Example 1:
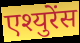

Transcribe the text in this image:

एश्युरेंस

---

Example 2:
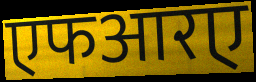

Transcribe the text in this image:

एफआरए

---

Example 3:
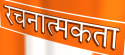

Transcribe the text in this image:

रचनात्मकता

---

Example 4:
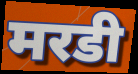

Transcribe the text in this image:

मरडी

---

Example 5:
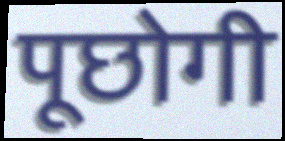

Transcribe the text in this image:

पूछोगी